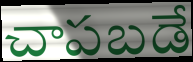
చాపబడే